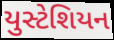
યુસ્ટેશિયન